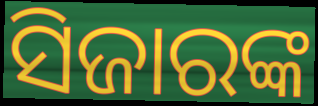
ସିଜାରଙ୍କ